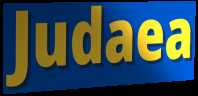
Judaea